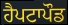
ਹੈਪਟਾਪੌਡ